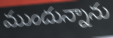
ముందున్నాను